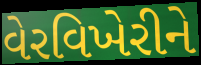
વેરવિખેરીને